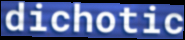
dichotic